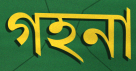
গহনা